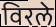
विरले